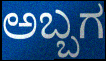
ಅಬ್ಬಗ